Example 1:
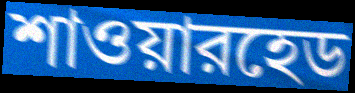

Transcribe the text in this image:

শাওয়ারহেড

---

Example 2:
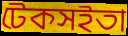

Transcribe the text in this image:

টেকসইতা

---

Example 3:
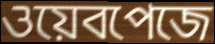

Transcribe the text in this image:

ওয়েবপেজে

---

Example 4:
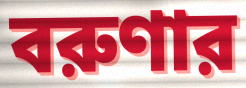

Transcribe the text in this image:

বরুণার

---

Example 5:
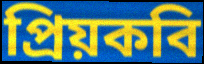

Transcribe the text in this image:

প্রিয়কবি